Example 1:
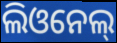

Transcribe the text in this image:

ଲିଓନେଲ୍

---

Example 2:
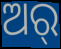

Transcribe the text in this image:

ଅର୍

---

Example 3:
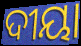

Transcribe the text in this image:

ଦୀୟା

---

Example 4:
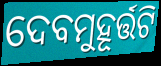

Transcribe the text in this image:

ଦେବମୁହୂର୍ତ୍ତଟି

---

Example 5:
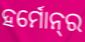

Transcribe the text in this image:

ହର୍ମୋନ୍‌ର